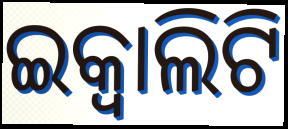
ଇକ୍ୱାଲିଟି